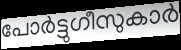
പോർട്ടുഗീസുകാർ